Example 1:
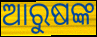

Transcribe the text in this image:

ଆରୁଷଙ୍କ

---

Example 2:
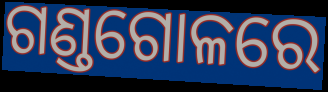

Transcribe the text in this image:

ଗଣ୍ଡଗୋଳରେ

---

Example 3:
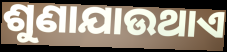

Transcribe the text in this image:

ଶୁଣାଯାଉଥାଏ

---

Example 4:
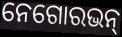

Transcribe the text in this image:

ନେଗୋରଭନ୍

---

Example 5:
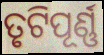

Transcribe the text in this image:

ତୃଟିପୂର୍ଣ୍ଣ